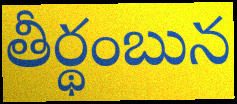
తీర్థంబున